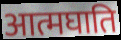
आत्मघाति